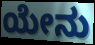
ಯೇನು